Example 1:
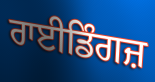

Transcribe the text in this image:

ਰਾਈਡਿੰਗਜ਼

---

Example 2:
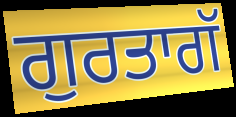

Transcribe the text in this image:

ਗੁਰਤਾਗੱ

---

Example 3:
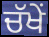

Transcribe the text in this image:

ਚੱਖੇਂ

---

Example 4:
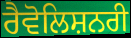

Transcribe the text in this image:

ਰੈਵੋਲਿਸ਼ਨਰੀ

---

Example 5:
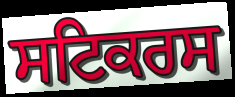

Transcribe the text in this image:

ਸਟਿਕਰਸ